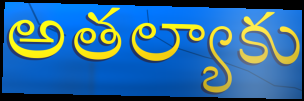
అతల్యాకు